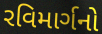
રવિમાર્ગનો